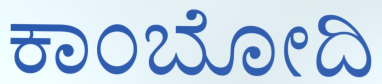
ಕಾಂಬೋದಿ